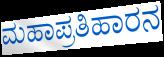
ಮಹಾಪ್ರತಿಹಾರನ